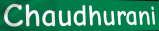
Chaudhurani